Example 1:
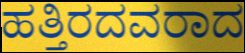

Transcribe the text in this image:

ಹತ್ತಿರದವರಾದ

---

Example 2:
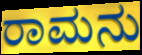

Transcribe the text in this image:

ರಾಮನು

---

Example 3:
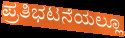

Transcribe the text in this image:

ಪ್ರತಿಭಟನೆಯಲ್ಲೂ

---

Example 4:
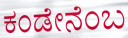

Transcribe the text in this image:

ಕಂಡೇನೆಂಬ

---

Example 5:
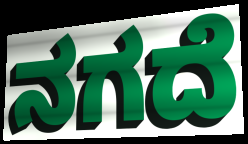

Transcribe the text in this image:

ನಗದೆ